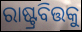
ରାଷ୍ଟ୍ରବିତ୍ତକୁ